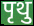
पृथु